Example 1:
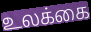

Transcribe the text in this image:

உலக்கை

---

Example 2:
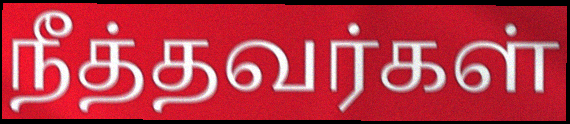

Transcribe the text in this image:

நீத்தவர்கள்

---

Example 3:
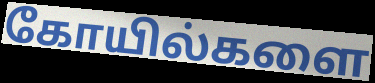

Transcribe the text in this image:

கோயில்களை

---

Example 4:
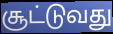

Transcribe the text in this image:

சூட்டுவது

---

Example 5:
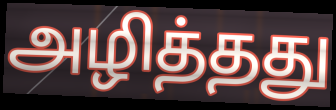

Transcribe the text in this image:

அழித்தது